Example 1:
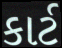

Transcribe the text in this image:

કાર્ટ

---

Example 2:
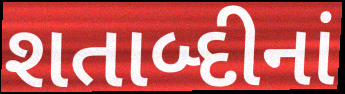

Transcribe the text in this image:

શતાબ્દીનાં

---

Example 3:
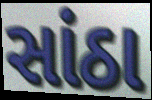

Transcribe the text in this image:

સાંઠા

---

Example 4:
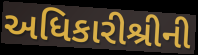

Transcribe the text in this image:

અધિકારીશ્રીની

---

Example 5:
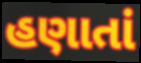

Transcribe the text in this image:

હણાતાં